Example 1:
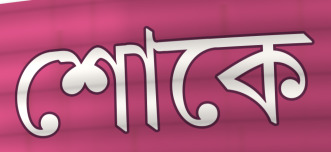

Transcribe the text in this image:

শোকে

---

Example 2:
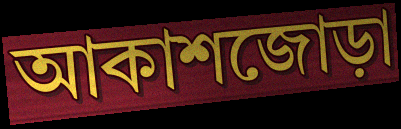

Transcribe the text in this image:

আকাশজোড়া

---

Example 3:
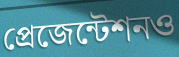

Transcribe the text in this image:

প্রেজেন্টেশনও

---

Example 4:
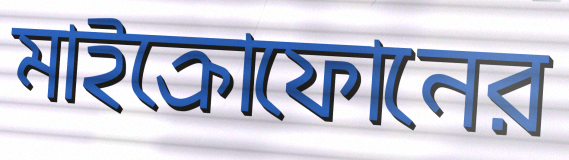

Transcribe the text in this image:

মাইক্রোফোনের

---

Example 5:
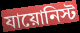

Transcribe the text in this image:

যায়োনিস্ট